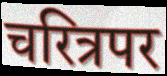
चरित्रपर